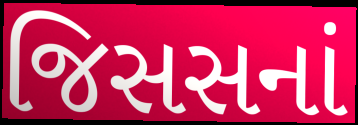
જિસસનાં